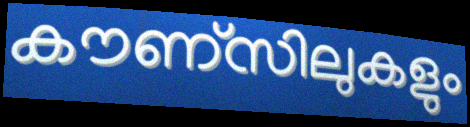
കൗണ്സിലുകളും